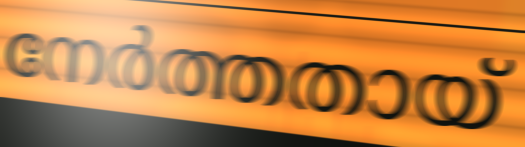
നേർത്തതായ്